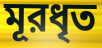
মূরধৃত